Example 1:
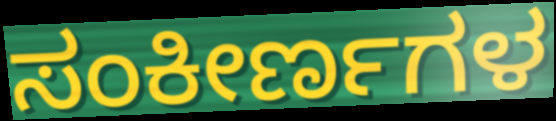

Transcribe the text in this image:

ಸಂಕೀರ್ಣಗಳ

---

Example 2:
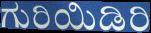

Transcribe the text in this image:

ಗುರಿಯಿಡಿರಿ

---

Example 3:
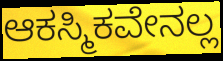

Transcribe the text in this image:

ಆಕಸ್ಮಿಕವೇನಲ್ಲ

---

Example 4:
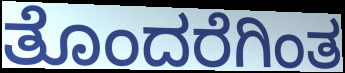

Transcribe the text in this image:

ತೊಂದರೆಗಿಂತ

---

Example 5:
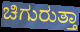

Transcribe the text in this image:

ಚಿಗುರುತ್ತಾ